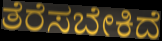
ತೆರೆಸಬೇಕಿದೆ